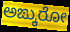
ಅಙ್ಕುರೋ